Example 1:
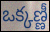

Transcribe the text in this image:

ఒక్కణ్ణీ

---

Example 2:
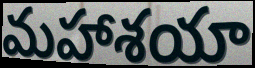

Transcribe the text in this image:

మహాశయా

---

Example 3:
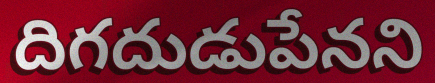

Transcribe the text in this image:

దిగదుడుపేనని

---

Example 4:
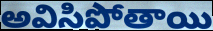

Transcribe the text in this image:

అవిసిపోతాయి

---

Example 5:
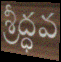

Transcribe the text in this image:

శ్రీద్ధవ